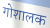
गोशालक